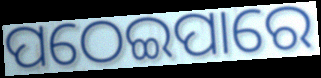
ପଠେଇପାରେ